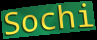
Sochi